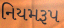
નિયમરૂપ